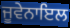
ਜੂਵੇਨਾਇਲ